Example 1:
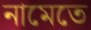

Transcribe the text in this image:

নামেতে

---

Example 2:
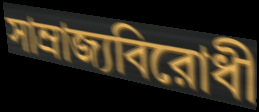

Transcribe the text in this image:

সাম্রাজ্যবিরোধী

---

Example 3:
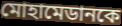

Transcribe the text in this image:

মোহামেডানকে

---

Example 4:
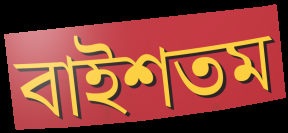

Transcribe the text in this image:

বাইশতম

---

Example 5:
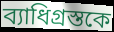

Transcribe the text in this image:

ব্যাধিগ্রস্তকে